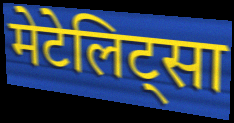
मेटेलिट्सा